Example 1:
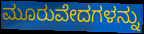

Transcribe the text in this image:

ಮೂರುವೇದಗಳನ್ನು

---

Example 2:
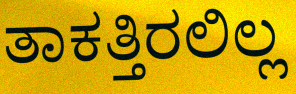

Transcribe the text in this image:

ತಾಕತ್ತಿರಲಿಲ್ಲ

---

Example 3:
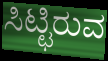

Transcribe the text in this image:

ಸಿಟ್ಟಿರುವ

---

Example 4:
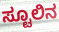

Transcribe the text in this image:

ಸ್ಟೂಲಿನ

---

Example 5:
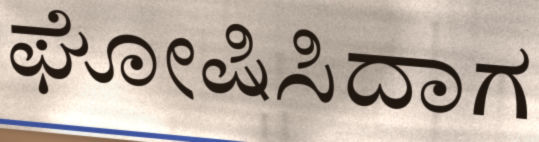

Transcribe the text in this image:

ಘೋಷಿಸಿದಾಗ